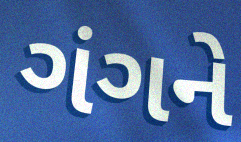
ગંગને